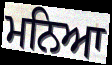
ਮਨਿਆ